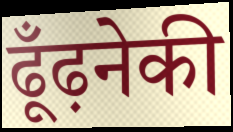
ढूँढ़नेकी